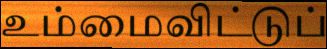
உம்மைவிட்டுப்